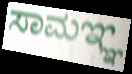
ಸಾಮಞ್ಞ